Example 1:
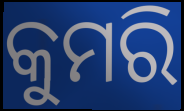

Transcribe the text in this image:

କୁମରି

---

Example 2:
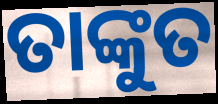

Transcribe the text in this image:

ତାଙ୍କୁତ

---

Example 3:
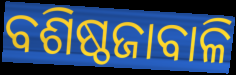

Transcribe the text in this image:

ବଶିଷ୍ଠଜାବାଳି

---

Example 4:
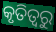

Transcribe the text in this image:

କୃତିତ୍ଵରୁ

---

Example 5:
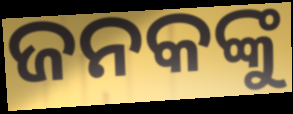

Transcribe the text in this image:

ଜନକଙ୍କୁ